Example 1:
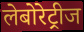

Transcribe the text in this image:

लेबोरेट्रीज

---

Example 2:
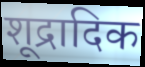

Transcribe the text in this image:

शूद्रादिक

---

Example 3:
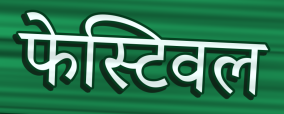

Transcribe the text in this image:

फेस्टिवल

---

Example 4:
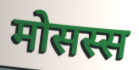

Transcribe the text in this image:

मोसस्स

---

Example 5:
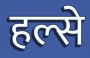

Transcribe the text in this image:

हल्से